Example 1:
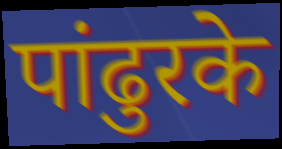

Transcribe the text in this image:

पांढुरके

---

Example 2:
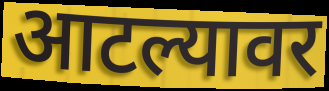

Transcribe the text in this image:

आटल्यावर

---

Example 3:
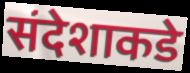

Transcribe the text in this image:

संदेशाकडे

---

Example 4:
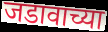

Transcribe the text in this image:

जडावाच्या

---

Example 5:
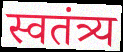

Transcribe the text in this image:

स्वतंत्र्य